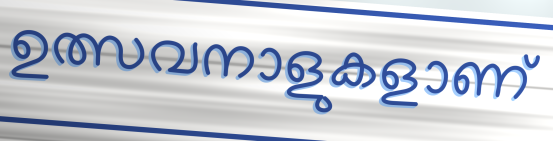
ഉത്സവനാളുകളാണ്